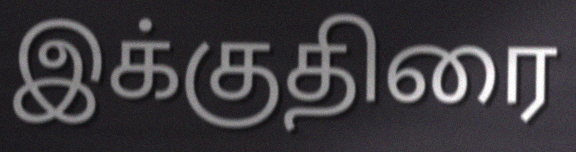
இக்குதிரை